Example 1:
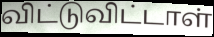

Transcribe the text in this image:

விட்டுவிட்டாள்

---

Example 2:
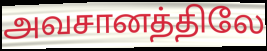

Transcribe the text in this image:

அவசானத்திலே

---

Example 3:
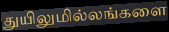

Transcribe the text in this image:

துயிலுமில்லங்களை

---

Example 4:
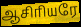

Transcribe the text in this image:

ஆசிரியரே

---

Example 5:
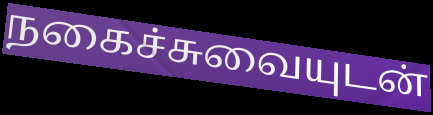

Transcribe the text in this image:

நகைச்சுவையுடன்